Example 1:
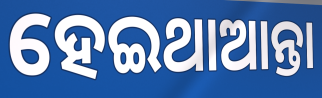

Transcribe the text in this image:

ହେଇଥାଆନ୍ତା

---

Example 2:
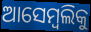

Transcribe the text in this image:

ଆସେମ୍ବଲିକୁ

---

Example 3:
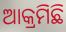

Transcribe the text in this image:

ଆକ୍ରମିଛି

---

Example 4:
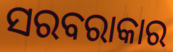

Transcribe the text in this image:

ସରବରାକାର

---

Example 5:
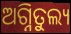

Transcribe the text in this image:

ଅଗ୍ନିତୁଲ୍ୟ